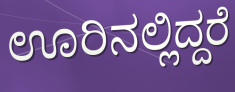
ಊರಿನಲ್ಲಿದ್ದರೆ